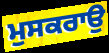
ਮੁਸਕਰਾਉ